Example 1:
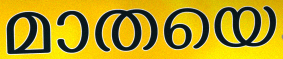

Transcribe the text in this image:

മാതയെ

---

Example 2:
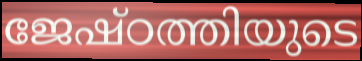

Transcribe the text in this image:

ജേഷ്ഠത്തിയുടെ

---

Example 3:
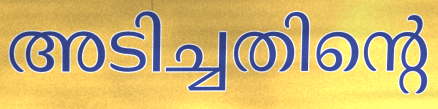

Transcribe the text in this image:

അടിച്ചതിന്റെ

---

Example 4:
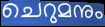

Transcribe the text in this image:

ചെറുമനും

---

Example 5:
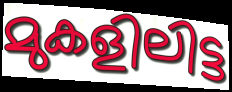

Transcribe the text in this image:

മുകളിലിട്ട